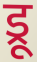
ड्रू